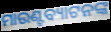
ମାଉଣ୍ଟବ୍ୟାଟନଙ୍କ